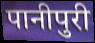
पानीपुरी